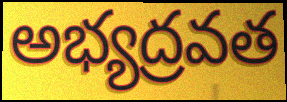
అభ్యద్రవత